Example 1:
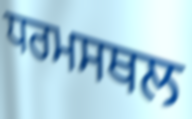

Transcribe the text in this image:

ਧਰਮਸਥਲ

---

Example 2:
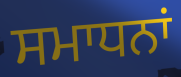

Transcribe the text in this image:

ਸਮਾਧਨਾਂ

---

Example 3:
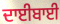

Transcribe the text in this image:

ਦਾਈਬਾਈ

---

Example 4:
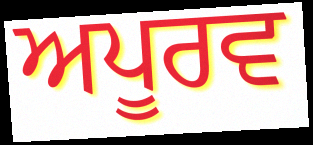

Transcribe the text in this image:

ਅਪੂਰਵ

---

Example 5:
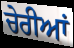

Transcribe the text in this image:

ਚੇਰੀਆਂ